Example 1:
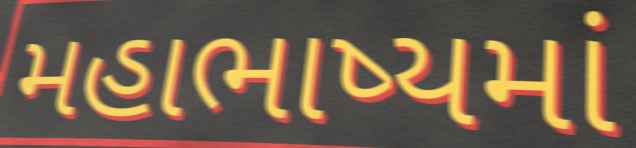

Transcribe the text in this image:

મહાભાષ્યમાં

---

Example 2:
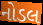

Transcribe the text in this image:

નોડલ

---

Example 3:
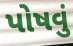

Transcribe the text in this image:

પોષવું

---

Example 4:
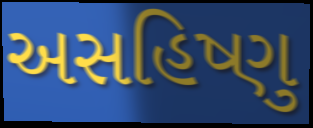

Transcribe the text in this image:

અસહિષ્ણુ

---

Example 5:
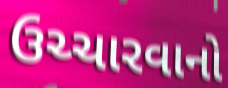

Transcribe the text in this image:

ઉચ્ચારવાનો